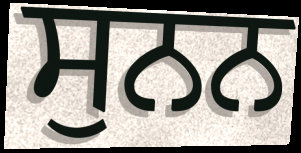
ਸੁਨਨ